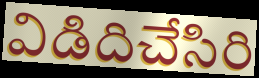
విడిదిచేసిరి